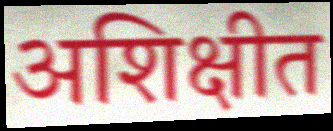
अशिक्षीत